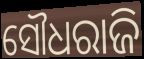
ସୌଧରାଜି